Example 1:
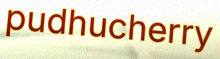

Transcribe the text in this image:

pudhucherry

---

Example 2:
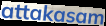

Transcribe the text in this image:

attakasam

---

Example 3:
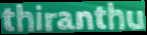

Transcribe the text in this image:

thiranthu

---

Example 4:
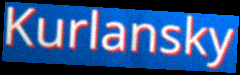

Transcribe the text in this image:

Kurlansky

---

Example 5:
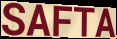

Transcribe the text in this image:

SAFTA